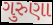
ગુરુણા